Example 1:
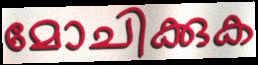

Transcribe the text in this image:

മോചിക്കുക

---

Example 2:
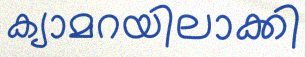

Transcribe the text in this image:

ക്യാമറയിലാക്കി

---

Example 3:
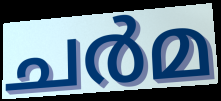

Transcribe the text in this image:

ചർമ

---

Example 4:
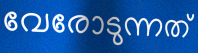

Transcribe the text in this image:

വേരോടുന്നത്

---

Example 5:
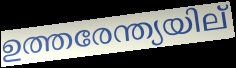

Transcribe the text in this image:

ഉത്തരേന്ത്യയില്